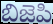
బిజెపి